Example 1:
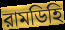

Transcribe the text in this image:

রামডিহি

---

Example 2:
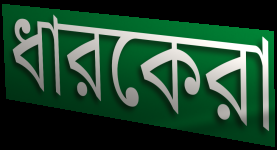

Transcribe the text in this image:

ধারকেরা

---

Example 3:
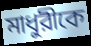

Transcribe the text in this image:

মাধুরীকে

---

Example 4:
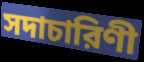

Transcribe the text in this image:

সদাচারিণী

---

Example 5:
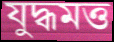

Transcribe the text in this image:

যুদ্ধমত্ত